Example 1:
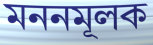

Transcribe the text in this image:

মননমূলক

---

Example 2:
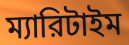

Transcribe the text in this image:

ম্যারিটাইম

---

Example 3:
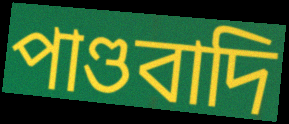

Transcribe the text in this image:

পাণ্ডবাদি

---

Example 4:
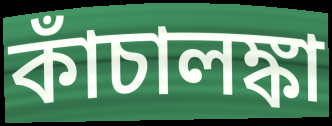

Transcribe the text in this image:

কাঁচালঙ্কা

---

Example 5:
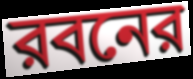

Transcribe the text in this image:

রবনের